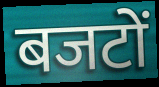
बजटों